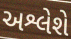
અશ્લેશે